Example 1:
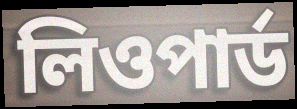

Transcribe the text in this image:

লিওপার্ড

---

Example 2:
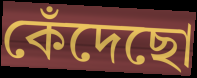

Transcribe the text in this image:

কেঁদেছো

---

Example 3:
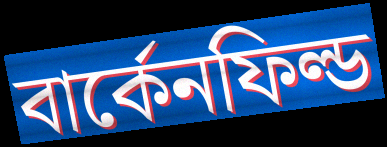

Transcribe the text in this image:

বার্কেনফিল্ড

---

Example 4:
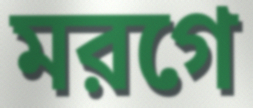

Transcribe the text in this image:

মরগে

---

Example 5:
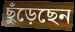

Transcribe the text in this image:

ছুঁড়েছেন